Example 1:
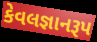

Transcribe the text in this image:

કેવલજ્ઞાનરૂપ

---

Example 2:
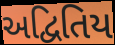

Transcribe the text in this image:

અદ્વિતિય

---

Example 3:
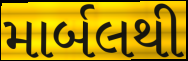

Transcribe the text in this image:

માર્બલથી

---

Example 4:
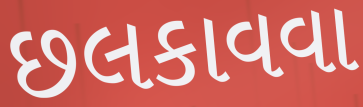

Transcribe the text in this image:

છલકાવવા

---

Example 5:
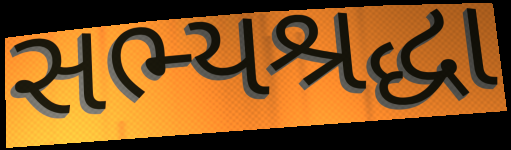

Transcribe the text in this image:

સભ્યશ્રદ્ધા